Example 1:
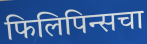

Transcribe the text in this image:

फिलिपिन्सचा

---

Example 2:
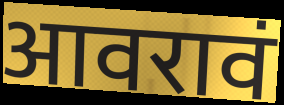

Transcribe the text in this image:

आवरावं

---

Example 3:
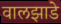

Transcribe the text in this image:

वालझाडे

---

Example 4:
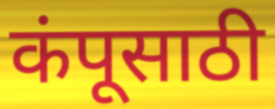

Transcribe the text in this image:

कंपूसाठी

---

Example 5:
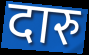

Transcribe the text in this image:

दारु